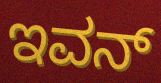
ಇವನ್